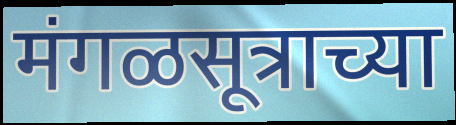
मंगळसूत्राच्या